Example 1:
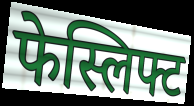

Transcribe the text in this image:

फेस्लिफ्ट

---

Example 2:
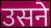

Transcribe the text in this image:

उसने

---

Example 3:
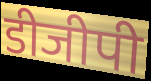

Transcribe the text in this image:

डीजीपी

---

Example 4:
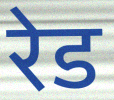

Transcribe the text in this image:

रेड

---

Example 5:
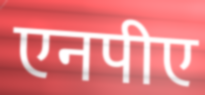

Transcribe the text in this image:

एनपीए